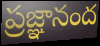
ప్రజ్ఞానంద